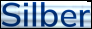
Silber